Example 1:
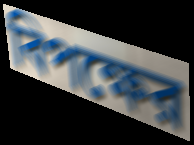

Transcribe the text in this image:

বিপক্ষের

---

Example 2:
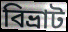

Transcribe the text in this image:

বিভ্রাট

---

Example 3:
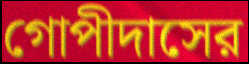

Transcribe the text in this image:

গোপীদাসের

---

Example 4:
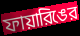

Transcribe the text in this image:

ফায়ারিঙের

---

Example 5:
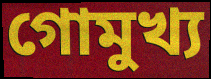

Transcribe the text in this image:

গোমুখ্য